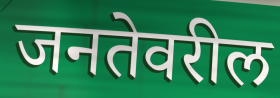
जनतेवरील